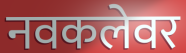
नवकलेवर